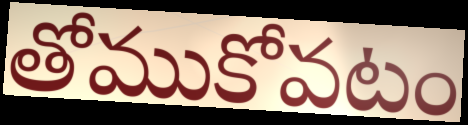
తోముకోవటం